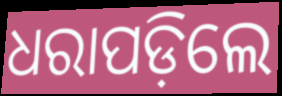
ଧରାପଡ଼ିଲେ